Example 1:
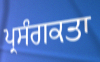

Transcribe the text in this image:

ਪ੍ਰਸੰਗਕਤਾ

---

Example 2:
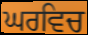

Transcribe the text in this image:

ਘਰਵਿਚ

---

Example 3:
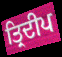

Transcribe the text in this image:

ਤ੍ਰਿਦੀਪ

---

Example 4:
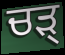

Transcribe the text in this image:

ਚੜ੍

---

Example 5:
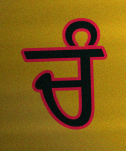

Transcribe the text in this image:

ਚੰ